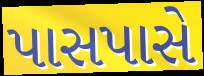
પાસપાસે